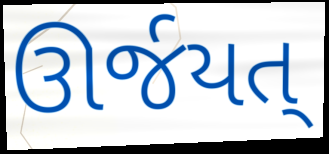
ઊર્જયત્